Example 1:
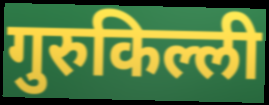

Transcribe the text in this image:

गुरुकिल्ली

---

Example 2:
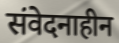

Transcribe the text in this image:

संवेदनाहीन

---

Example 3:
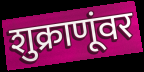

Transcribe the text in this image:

शुक्राणूंवर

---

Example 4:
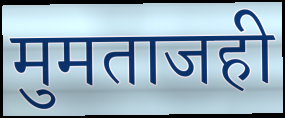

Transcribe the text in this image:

मुमताजही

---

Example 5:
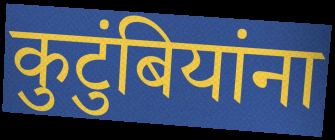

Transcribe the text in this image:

कुटुंबियांना